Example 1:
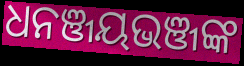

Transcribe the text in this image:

ଧନଞ୍ଜୟଭଞ୍ଜଙ୍କ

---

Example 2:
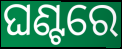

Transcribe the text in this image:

ଘଣ୍ଟରେ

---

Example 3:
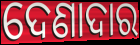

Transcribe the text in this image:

ଦେଣାଦାର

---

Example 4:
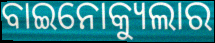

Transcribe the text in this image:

ବାଇନୋକ୍ୟୁଲାର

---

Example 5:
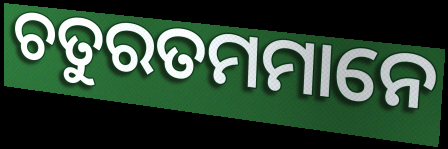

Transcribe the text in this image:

ଚତୁରତମମାନେ